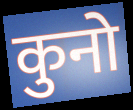
कुनो